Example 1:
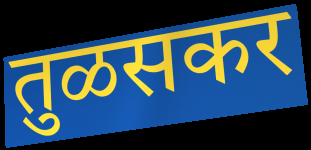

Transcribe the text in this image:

तुळसकर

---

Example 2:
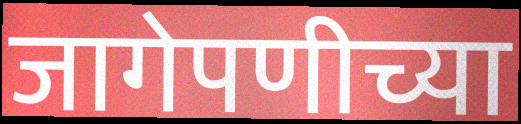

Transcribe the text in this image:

जागेपणीच्या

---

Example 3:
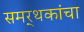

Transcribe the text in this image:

समर्थकांचा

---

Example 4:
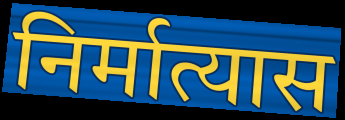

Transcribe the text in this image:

निर्मात्यास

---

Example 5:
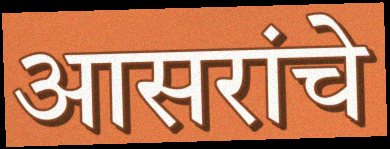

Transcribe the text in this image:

आसरांचे